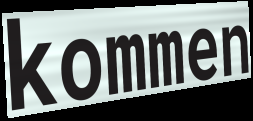
kommen